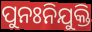
ପୁନଃନିଯୁକ୍ତି